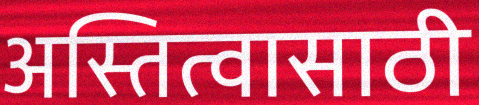
अस्तित्वासाठी